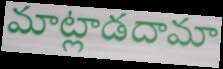
మాట్లాడదామా